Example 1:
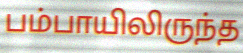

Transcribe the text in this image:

பம்பாயிலிருந்த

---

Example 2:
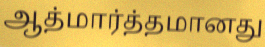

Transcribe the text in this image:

ஆத்மார்த்தமானது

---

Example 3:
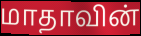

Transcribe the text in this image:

மாதாவின்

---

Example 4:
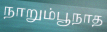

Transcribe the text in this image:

நாறும்பூநாத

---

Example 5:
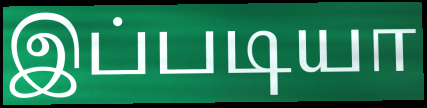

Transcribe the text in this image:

இப்படியா